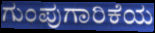
ಗುಂಪುಗಾರಿಕೆಯ